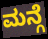
ಮನ್ಗೆ